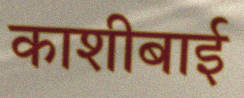
काशीबाई